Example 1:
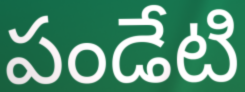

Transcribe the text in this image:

పండేటి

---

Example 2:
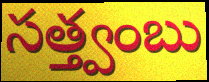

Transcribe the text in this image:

సత్త్వంబు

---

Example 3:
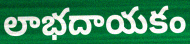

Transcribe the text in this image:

లాభదాయకం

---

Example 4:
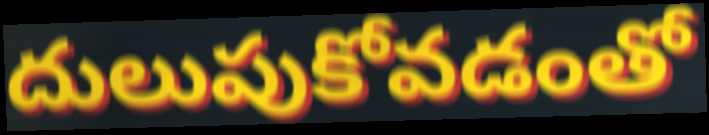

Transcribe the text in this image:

దులుపుకోవడంతో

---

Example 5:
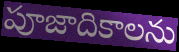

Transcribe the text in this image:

పూజాదికాలను